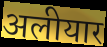
अलीयार